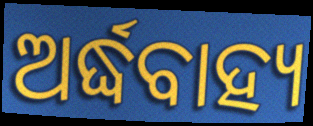
ଅର୍ଦ୍ଧବାହ୍ୟ